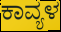
ಕಾವ್ಯಳ